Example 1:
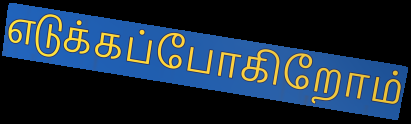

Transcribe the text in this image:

எடுக்கப்போகிறோம்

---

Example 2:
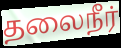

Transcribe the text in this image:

தலைநீர்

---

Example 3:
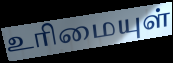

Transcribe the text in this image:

உரிமையுள்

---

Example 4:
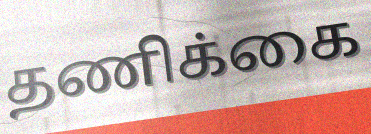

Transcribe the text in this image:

தணிக்கை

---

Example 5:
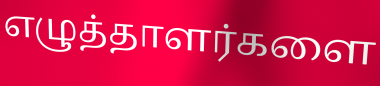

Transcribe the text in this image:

எழுத்தாளர்களை